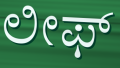
ಲೀಫ್